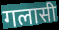
गलासी